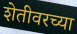
शेतीवरच्या